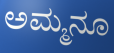
ಅಮ್ಮನೂ